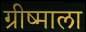
ग्रीष्माला